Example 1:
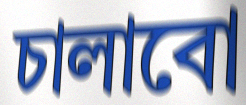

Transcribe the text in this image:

চালাবো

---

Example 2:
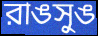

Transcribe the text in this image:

রাঙসুঙ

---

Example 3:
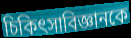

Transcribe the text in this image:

চিকিৎসাবিজ্ঞানকে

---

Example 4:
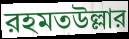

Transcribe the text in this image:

রহমতউল্লার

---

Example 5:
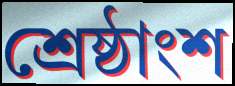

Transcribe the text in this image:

শ্রেষ্ঠাংশ